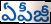
ఏపీజీ